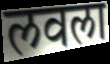
लवला